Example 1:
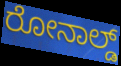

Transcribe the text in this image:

ರೋನಾಲ್ಡ್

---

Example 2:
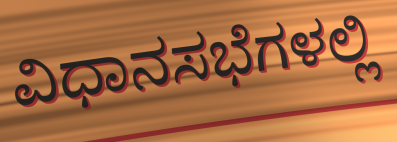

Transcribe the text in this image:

ವಿಧಾನಸಭೆಗಳಲ್ಲಿ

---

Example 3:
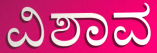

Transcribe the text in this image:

ವಿಶಾವ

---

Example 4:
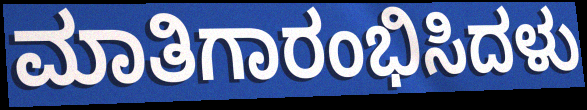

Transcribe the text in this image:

ಮಾತಿಗಾರಂಭಿಸಿದಳು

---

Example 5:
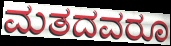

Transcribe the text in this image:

ಮತದವರೂ